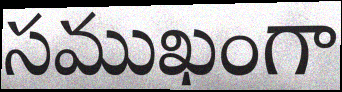
సముఖంగా